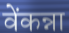
वेंकन्ना